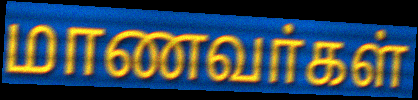
மாணவர்கள்